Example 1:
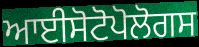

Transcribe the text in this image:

ਆਈਸੋਟੋਪੋਲੋਗਸ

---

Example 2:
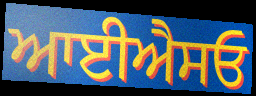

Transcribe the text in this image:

ਆਈਐਸਓ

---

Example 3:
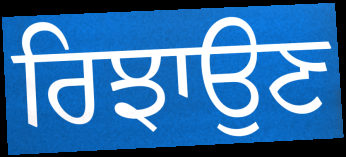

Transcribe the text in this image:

ਰਿਝਾਉਣ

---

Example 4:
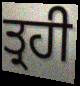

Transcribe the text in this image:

ਤ੍ਰਹੀ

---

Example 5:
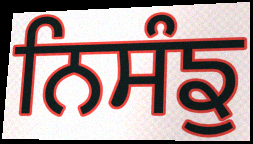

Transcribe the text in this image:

ਨਿਸੰਙੁ